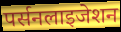
पर्सनलाइजेशन